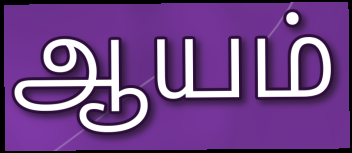
ஆயம்